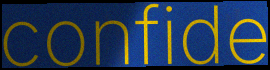
confide